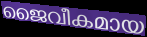
ജൈവീകമായ